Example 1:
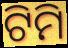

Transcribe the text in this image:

ଟିମି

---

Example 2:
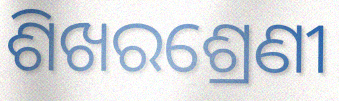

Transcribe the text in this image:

ଶିଖରଶ୍ରେଣୀ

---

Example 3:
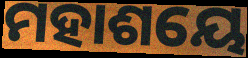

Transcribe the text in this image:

ମହାଶୟେ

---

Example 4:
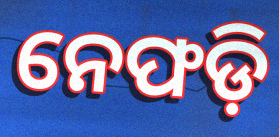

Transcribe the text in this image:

ନେଫଡ଼ି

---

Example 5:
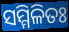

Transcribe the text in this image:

ସମ୍ମିଳିତଃ